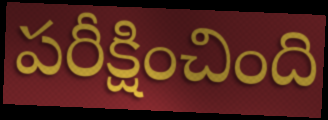
పరీక్షించింది